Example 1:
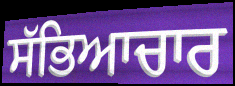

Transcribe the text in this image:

ਸੱਭਿਆਚਾਰ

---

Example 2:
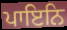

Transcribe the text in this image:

ਪਾਇਨਿ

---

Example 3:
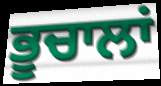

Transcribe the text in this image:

ਭੂਚਾਲਾਂ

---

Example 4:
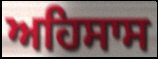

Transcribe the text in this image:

ਅਹਿਸਾਸ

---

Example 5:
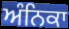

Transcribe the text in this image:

ਅੰਨਿਕਾ